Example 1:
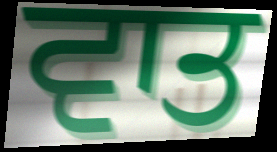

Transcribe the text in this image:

ਵਾਤ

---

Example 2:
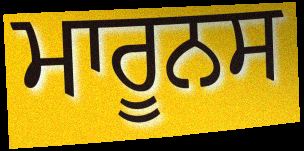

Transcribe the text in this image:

ਮਾਰੂਨਸ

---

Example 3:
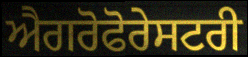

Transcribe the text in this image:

ਐਗਰੋਫੋਰੇਸਟਰੀ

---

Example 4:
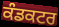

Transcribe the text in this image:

ਕੰਡਕਟਰ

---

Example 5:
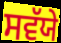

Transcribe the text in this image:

ਸਵੱਯੇ